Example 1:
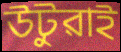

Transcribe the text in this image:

উটুৱাই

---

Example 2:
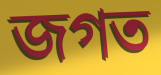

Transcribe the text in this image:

জগত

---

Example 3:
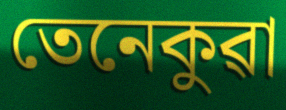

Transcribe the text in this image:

তেনেকুৱা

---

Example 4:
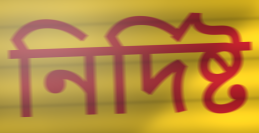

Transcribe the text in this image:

নিৰ্দিষ্ট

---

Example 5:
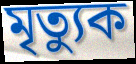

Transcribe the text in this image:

মৃত্যুক